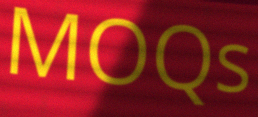
MOQs